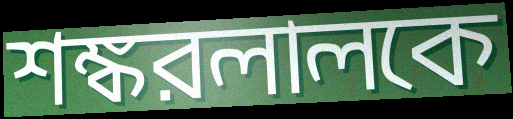
শঙ্করলালকে